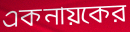
একনায়কের